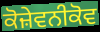
ਕੋਜ਼ੇਵਨੀਕੋਵ